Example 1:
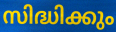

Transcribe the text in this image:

സിദ്ധിക്കും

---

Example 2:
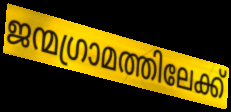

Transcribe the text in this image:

ജന്മഗ്രാമത്തിലേക്ക്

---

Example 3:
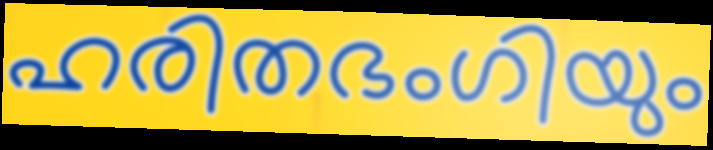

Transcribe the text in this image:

ഹരിതഭംഗിയും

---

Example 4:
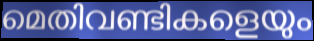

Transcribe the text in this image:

മെതിവണ്ടികളെയും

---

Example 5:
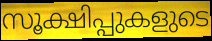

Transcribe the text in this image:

സൂക്ഷിപ്പുകളുടെ